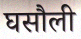
घसौली